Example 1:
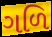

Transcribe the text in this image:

ગળિ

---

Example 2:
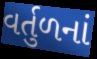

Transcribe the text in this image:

વર્તુળનાં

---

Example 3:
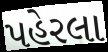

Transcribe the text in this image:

પહેરલા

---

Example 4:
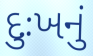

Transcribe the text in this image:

દુઃખનું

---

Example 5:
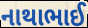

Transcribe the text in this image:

નાથાભાઈ